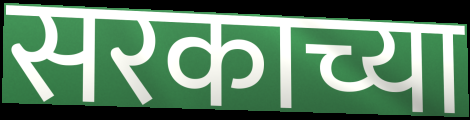
सरकाच्या